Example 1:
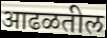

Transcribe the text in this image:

आढळतील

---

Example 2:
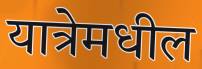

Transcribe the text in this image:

यात्रेमधील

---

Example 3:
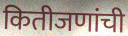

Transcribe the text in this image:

कितीजणांची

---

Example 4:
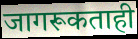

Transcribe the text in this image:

जागरूकताही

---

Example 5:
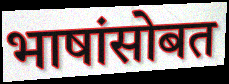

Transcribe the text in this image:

भाषांसोबत